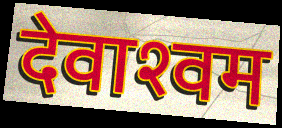
देवाश्वम